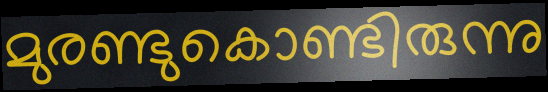
മുരണ്ടുകൊണ്ടിരുന്നു